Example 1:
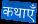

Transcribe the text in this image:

कथाएँ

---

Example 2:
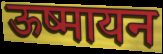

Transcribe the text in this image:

ऊष्मायन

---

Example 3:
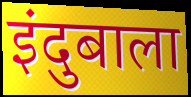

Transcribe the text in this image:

इंदुबाला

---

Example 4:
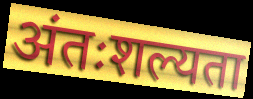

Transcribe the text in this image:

अंतःशल्यता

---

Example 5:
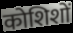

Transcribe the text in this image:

कोशिशों